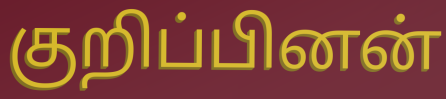
குறிப்பினன்